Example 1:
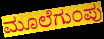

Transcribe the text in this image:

ಮೂಲೆಗುಂಪು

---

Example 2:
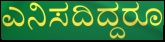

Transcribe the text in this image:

ಎನಿಸದಿದ್ದರೂ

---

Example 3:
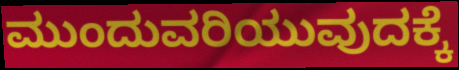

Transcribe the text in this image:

ಮುಂದುವರಿಯುವುದಕ್ಕೆ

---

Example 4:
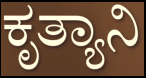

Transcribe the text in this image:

ಕೃತ್ಯಾನಿ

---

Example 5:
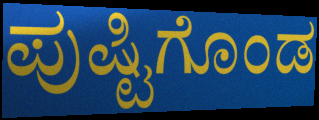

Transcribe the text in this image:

ಪುಷ್ಟಿಗೊಂಡ